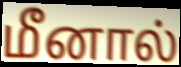
மீனால்